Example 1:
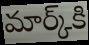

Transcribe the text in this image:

మార్క్‌కి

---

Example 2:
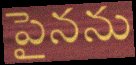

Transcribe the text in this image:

పైనను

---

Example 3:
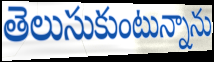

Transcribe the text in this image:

తెలుసుకుంటున్నాను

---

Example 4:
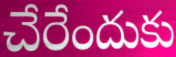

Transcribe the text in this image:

చేరేందుకు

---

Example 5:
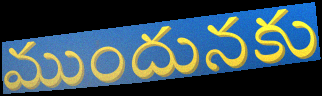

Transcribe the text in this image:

ముందునకు